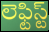
లెఫ్టిస్ట్